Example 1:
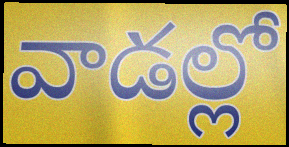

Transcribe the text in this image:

వాడల్లో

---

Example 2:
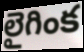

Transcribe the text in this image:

లైగింక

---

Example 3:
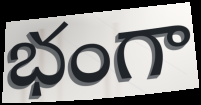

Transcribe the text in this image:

భంగా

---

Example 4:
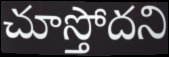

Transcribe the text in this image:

చూస్తోదని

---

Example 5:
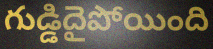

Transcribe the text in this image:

గుడ్డిదైపోయింది